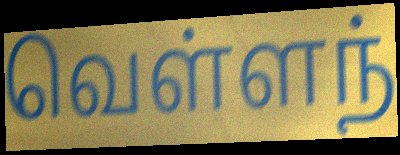
வெள்ளந்